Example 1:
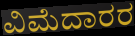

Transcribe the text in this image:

ವಿಮೆದಾರರ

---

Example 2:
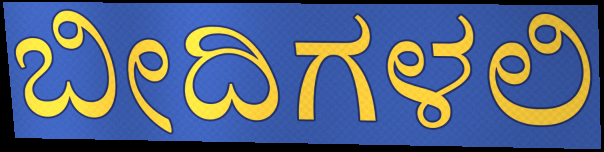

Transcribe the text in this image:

ಬೀದಿಗಳಲಿ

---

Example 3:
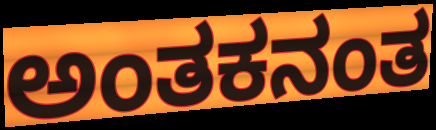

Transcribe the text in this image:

ಅಂತಕನಂತ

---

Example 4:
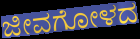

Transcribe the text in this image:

ಜೀವಗೋಳದ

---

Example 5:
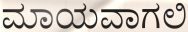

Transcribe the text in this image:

ಮಾಯವಾಗಲಿ